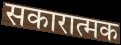
सकारात्मक